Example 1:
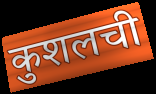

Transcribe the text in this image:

कुशलची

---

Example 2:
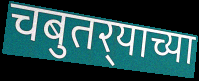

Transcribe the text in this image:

चबुतर्‍याच्या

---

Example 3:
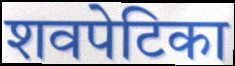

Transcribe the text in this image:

शवपेटिका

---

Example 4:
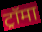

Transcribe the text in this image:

ट्रॉमा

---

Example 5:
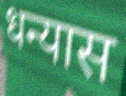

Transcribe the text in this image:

धन्यास